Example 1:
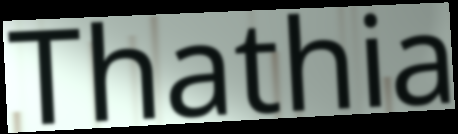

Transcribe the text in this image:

Thathia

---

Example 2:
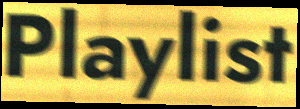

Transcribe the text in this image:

Playlist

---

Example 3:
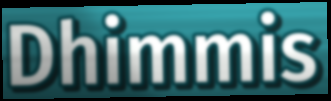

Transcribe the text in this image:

Dhimmis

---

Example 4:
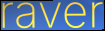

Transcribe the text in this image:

raver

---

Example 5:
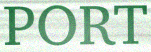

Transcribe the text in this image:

PORT